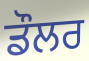
ਡੌਲਰ